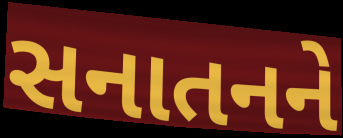
સનાતનને